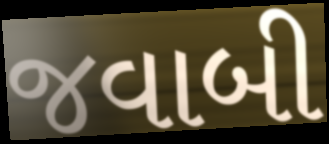
જવાબી